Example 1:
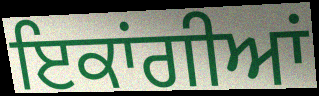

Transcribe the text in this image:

ਇਕਾਂਗੀਆਂ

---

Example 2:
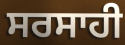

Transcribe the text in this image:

ਸਰਸਾਹੀ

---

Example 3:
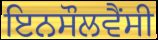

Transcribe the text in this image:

ਇਨਸੌਲਵੈਂਸੀ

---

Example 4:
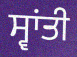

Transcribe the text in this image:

ਸ੍ਵਾਂਤੀ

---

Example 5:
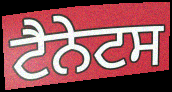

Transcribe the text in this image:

ਟੈਨੇਟਸ